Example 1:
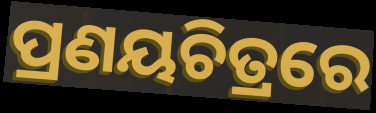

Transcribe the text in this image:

ପ୍ରଣୟଚିତ୍ରରେ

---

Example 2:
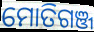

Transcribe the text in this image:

ମୋତିଗଞ୍ଜ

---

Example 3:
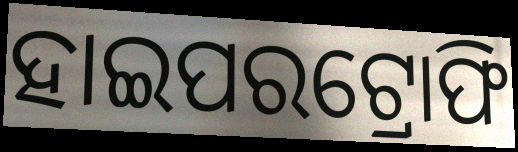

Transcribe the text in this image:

ହାଇପରଟ୍ରୋଫି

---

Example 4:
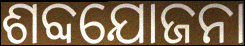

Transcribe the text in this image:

ଶବ୍ଦଯୋଜନା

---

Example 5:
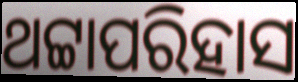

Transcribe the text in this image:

ଥଟ୍ଟାପରିହାସ